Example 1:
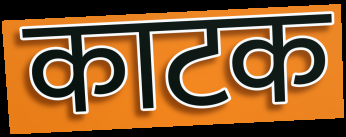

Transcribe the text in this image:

काटक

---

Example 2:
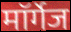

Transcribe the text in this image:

मॉर्गेज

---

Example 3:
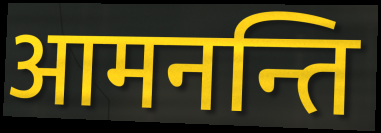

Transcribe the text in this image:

आमनन्ति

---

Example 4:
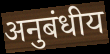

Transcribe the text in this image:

अनुबंधीय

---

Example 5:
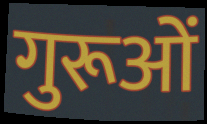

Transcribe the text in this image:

गुरूओं